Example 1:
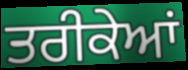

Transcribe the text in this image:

ਤਰੀਕੇਆਂ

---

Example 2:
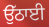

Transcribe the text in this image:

ਉੱਠਾਈ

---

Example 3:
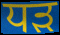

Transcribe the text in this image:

ਧੜ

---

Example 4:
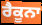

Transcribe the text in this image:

ਰੈਕੂਨਾ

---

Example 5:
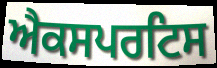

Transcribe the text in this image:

ਐਕਸਪਰਟਿਸ